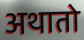
अथातो